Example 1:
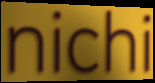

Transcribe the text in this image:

nichi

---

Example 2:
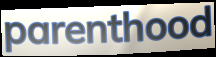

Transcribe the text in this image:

parenthood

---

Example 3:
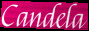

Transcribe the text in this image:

Candela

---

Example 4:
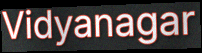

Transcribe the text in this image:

Vidyanagar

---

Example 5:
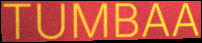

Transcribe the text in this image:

TUMBAA